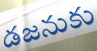
డజనుకు